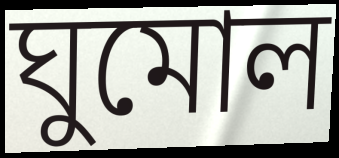
ঘুমোল